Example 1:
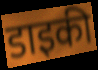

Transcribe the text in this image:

डाइकी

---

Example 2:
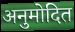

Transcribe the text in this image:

अनुमोदित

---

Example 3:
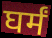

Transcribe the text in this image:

घर्मं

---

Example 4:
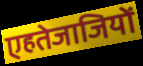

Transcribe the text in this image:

एहतेजाजियों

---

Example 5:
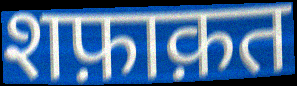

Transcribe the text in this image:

शफ़ाक़त